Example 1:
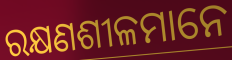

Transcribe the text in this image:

ରକ୍ଷଣଶୀଳମାନେ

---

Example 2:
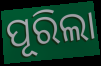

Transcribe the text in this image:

ପୂରିଲା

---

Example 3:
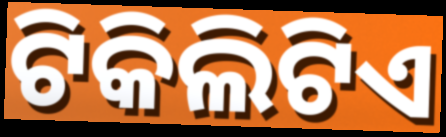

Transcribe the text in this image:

ଟିକିଲିଟିଏ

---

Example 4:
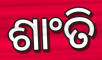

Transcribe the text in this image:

ଶାଂତି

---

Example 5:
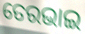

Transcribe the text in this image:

ତେରଭାଇ